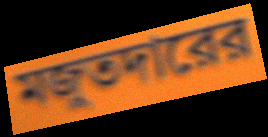
মজুতদারের